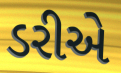
ડરીએ